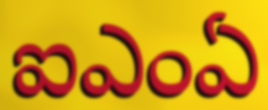
ఐఎంఏ